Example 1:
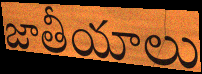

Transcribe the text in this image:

జాతీయాలు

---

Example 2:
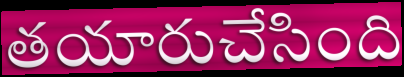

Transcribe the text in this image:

తయారుచేసింది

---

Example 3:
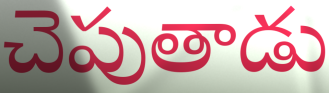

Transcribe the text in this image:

చెపుతాడు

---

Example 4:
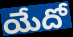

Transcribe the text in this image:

యేదో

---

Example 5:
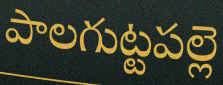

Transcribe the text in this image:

పాలగుట్టపల్లె